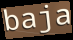
baja